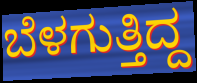
ಬೆಳಗುತ್ತಿದ್ದ